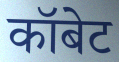
कॉबेट